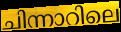
ചിന്നാറിലെ